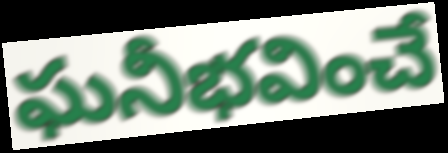
ఘనీభవించే